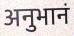
अनुभानं